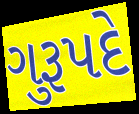
ગુરૂપદે